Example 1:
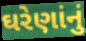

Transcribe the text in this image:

ઘરેણાંનું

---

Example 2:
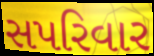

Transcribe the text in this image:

સપરિવાર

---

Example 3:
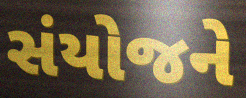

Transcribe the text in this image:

સંયોજને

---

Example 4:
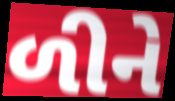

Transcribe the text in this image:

ળીને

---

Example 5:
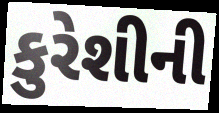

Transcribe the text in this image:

કુરેશીની